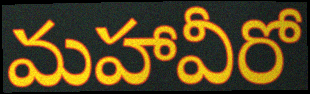
మహావీరో